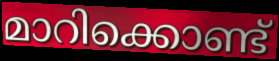
മാറിക്കൊണ്ട്